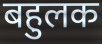
बहुलक